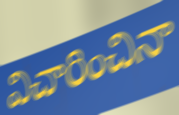
విచారించినా